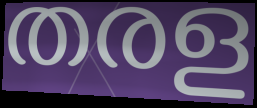
തരള